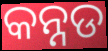
କନ୍ନଡ